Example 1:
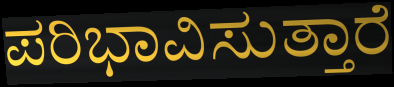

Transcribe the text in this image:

ಪರಿಭಾವಿಸುತ್ತಾರೆ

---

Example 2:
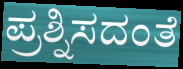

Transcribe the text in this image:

ಪ್ರಶ್ನಿಸದಂತೆ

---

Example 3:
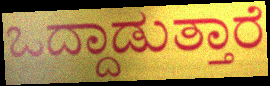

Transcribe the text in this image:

ಒದ್ದಾಡುತ್ತಾರೆ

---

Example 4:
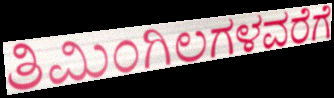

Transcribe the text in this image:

ತಿಮಿಂಗಿಲಗಳವರೆಗೆ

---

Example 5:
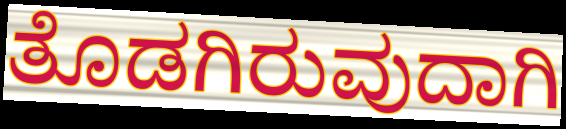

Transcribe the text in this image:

ತೊಡಗಿರುವುದಾಗಿ